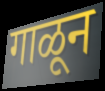
गाळून